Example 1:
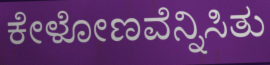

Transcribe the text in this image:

ಕೇಳೋಣವೆನ್ನಿಸಿತು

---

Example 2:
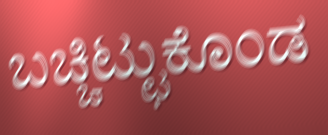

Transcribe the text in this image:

ಬಚ್ಚಿಟ್ಟುಕೊಂಡ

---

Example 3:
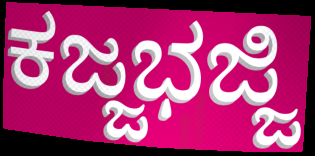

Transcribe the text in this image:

ಕಜ್ಜಭಜ್ಜಿ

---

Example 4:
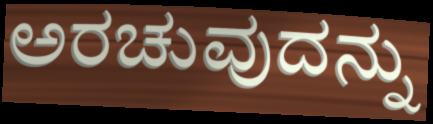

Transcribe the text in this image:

ಅರಚುವುದನ್ನು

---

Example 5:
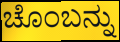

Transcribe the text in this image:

ಚೊಂಬನ್ನು